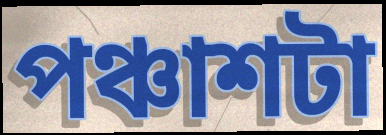
পঞ্চাশটা